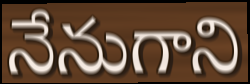
నేనుగాని